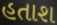
હતાશ